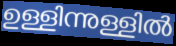
ഉള്ളിന്നുള്ളിൽ